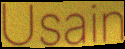
Usain